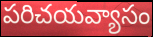
పరిచయవ్యాసం